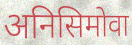
अनिसिमोवा